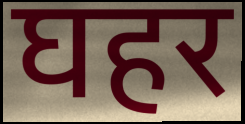
घहर